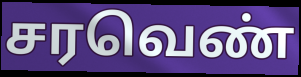
சரவெண்